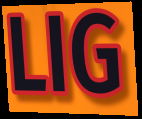
LIG